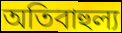
অতিবাহুল্য